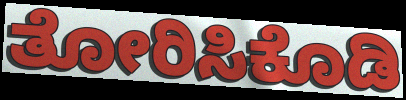
ತೋರಿಸಿಕೊಡಿ